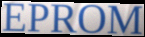
EPROM